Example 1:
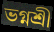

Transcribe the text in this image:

ভগ্নশ্রী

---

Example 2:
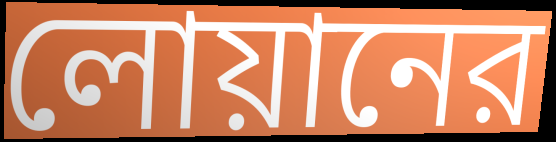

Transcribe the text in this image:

লোয়ানের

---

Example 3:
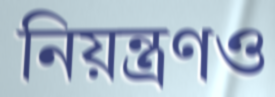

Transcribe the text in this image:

নিয়ন্ত্রণও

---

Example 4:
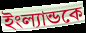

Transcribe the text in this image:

ইংল্যান্ডকে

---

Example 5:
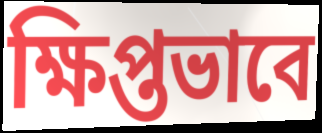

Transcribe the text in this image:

ক্ষিপ্তভাবে